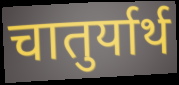
चातुर्यार्थ